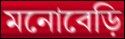
মনোবেড়ি